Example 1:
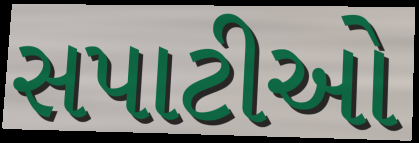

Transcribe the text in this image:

સપાટીઓ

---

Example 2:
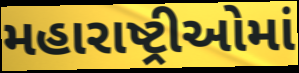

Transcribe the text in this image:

મહારાષ્ટ્રીઓમાં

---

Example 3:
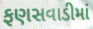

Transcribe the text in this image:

ફણસવાડીમાં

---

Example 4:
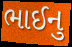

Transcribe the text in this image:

ભાઈનુ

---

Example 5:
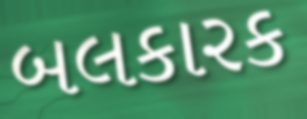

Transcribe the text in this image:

બલકારક